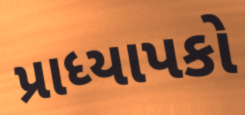
પ્રાધ્યાપકો